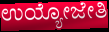
ಉಯ್ಯೋಜೇತಿ